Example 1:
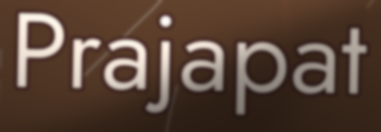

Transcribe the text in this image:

Prajapat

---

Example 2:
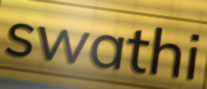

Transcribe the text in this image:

swathi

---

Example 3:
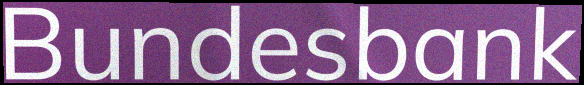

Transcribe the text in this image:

Bundesbank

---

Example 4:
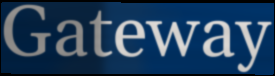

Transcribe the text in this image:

Gateway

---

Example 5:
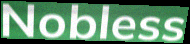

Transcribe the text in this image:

Nobless